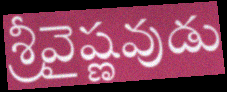
శ్రీవైష్ణవుడు